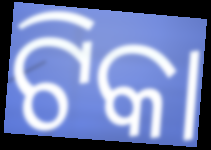
ଟିକା